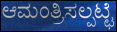
ಆಮಂತ್ರಿಸಲ್ಪಟ್ಟೆ